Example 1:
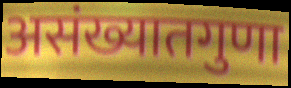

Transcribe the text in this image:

असंख्यातगुणा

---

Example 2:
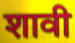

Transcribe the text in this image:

शावी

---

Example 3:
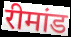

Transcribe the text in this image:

रीमांड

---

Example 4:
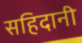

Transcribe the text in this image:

सहिदानी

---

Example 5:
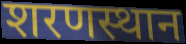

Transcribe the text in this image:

शरणस्थान